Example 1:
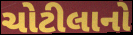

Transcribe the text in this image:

ચોટીલાનો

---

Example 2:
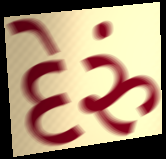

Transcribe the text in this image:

દેરું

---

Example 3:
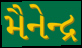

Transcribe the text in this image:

મૈનેન્દ્ર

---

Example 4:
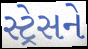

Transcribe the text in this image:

સ્ટ્રેસને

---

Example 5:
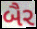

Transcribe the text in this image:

બૈર